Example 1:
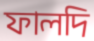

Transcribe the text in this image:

ফালদি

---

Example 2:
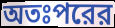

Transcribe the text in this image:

অতঃপরের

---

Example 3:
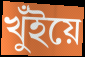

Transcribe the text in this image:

খুঁইয়ে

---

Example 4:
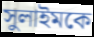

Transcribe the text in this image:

সুলাইমকে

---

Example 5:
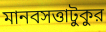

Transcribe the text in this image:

মানবসত্তাটুকুর